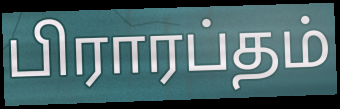
பிராரப்தம்